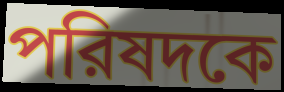
পরিষদকে